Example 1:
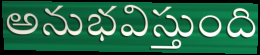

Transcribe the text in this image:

అనుభవిస్తుంది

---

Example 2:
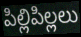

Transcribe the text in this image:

పిల్లిపిల్లలు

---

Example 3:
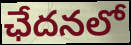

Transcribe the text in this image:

ఛేదనలో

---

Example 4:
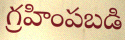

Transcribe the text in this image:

గ్రహింపబడి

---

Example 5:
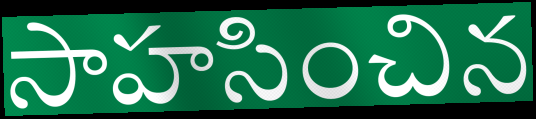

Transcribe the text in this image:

సాహసించిన